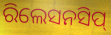
ରିଲେସନସିପ୍